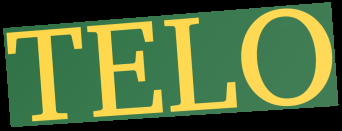
TELO